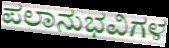
ಪಲಾನುಭವಿಗಳ